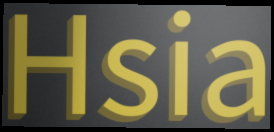
Hsia